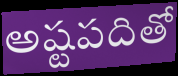
అష్టపదితో